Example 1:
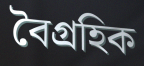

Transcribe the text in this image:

বৈগ্রহিক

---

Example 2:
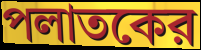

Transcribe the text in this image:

পলাতকের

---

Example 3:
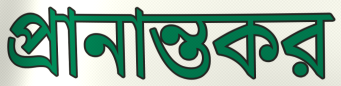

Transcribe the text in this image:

প্রানান্তকর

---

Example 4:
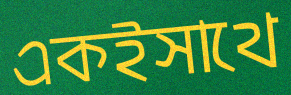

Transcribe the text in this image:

একইসাথে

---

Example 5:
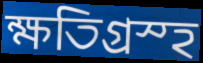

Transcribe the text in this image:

ক্ষতিগ্রস্হ